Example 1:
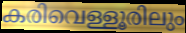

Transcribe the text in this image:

കരിവെള്ളൂരിലും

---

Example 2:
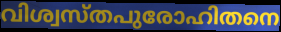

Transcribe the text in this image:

വിശ്വസ്തപുരോഹിതനെ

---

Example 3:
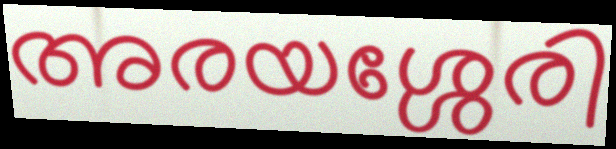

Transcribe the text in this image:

അരയശ്ശേരി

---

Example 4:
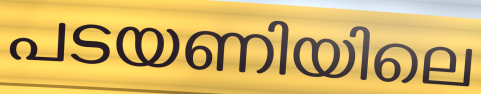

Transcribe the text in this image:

പടയണിയിലെ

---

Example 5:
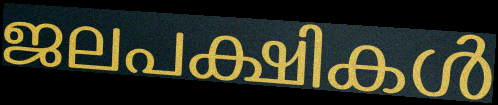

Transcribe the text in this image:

ജലപക്ഷികൾ